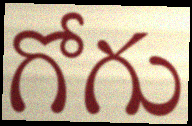
గోగు